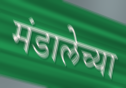
मंडालेच्या